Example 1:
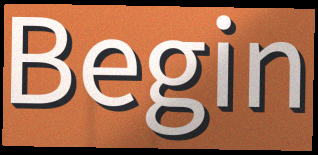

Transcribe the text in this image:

Begin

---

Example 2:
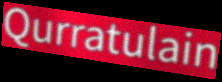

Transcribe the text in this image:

Qurratulain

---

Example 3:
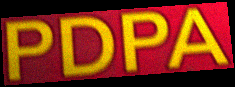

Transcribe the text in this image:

PDPA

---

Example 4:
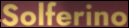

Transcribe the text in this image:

Solferino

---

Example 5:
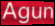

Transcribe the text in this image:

Agun